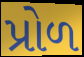
પ્રોળ